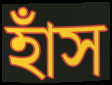
হাঁস